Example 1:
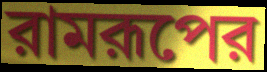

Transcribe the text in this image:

রামরূপের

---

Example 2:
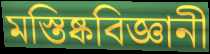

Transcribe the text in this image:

মস্তিষ্কবিজ্ঞানী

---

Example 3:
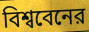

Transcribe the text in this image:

বিশ্ববেনের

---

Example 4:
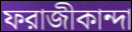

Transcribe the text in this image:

ফরাজীকান্দা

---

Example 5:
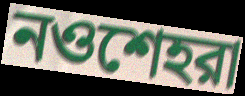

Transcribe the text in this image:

নওশেহরা